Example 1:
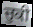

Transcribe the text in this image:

ਚੁਕੀ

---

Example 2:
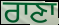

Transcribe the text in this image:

ਰਾਣਾ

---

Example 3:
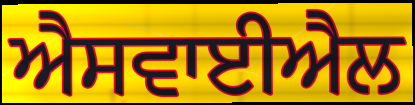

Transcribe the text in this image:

ਐਸਵਾਈਐਲ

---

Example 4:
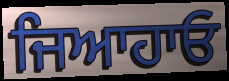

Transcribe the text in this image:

ਜਿਆਹਾਓ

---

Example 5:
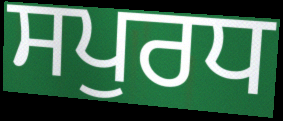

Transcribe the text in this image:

ਸਪੁਰਧ